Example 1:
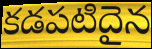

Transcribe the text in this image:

కడపటిదైన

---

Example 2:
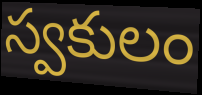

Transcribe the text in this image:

స్వకులం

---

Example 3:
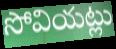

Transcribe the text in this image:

సోవియట్లు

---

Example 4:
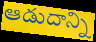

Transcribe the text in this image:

ఆడుదాన్ని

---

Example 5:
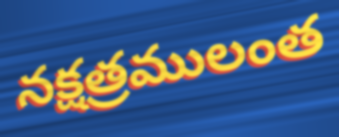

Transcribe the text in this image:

నక్షత్రములంత